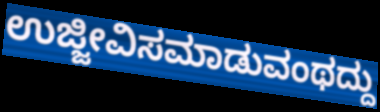
ಉಜ್ಜೀವಿಸಮಾಡುವಂಥದ್ದು